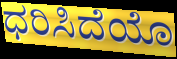
ಧರಿಸಿದೆಯೊ